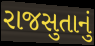
રાજસુતાનું